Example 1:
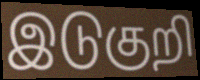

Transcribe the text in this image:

இடுகுறி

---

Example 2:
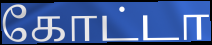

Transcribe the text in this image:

கோட்டா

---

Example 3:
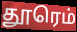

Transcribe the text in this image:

தூரெம்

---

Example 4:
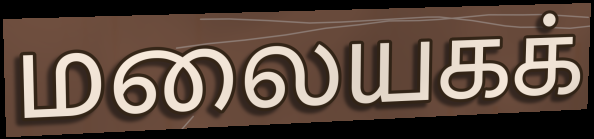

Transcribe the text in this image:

மலையகக்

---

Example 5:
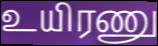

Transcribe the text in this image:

உயிரணு